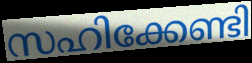
സഹിക്കേണ്ടി